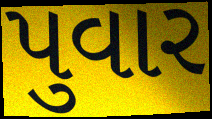
પુવાર